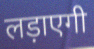
लड़ाएगी